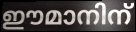
ഈമാനിന്